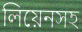
লিয়েনসহ